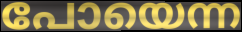
പോയെന്ന